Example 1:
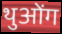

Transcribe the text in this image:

थुओंग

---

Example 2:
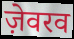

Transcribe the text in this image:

ज़ेवरव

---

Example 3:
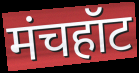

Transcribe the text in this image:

मंचहॉट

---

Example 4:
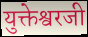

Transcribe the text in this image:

युक्तेश्वरजी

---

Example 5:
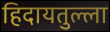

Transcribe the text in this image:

हिदायतुल्ला